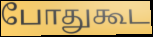
போதுகூட